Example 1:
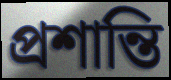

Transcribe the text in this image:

প্ৰশান্তি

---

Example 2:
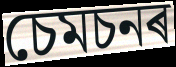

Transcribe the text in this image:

চেমচনৰ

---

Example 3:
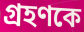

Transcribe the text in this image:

গ্ৰহণকে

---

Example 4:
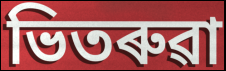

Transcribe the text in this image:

ভিতৰুৱা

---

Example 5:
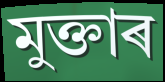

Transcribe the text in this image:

মুক্তাৰ